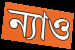
ন্যাও